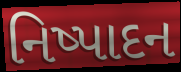
નિષ્પાદન